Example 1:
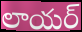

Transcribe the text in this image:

లాయర్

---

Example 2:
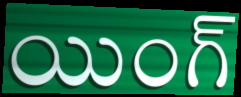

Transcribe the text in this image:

యింగ్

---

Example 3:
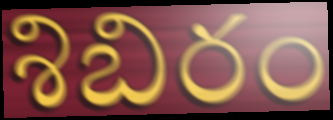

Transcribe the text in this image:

శిబిరం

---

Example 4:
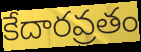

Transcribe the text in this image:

కేదారవ్రతం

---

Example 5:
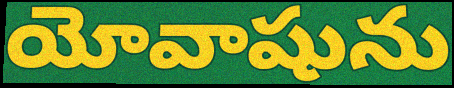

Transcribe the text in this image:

యోవాషును